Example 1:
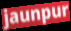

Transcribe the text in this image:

jaunpur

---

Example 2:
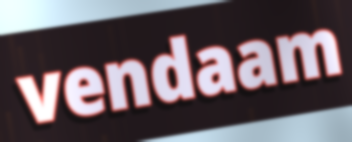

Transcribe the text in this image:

vendaam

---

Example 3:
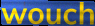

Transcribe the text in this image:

wouch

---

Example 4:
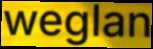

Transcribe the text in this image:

weglan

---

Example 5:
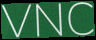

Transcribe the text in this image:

VNC